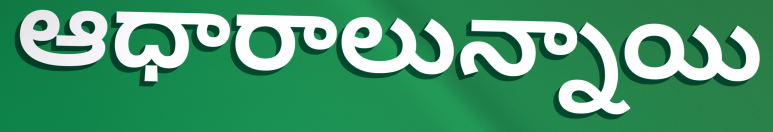
ఆధారాలున్నాయి